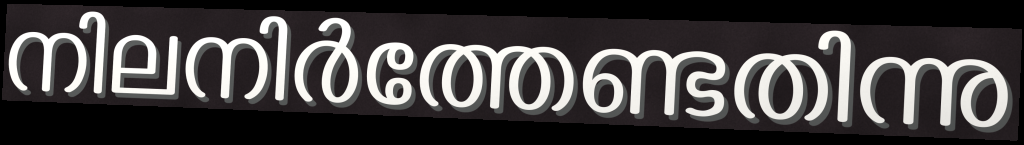
നിലനിർത്തേണ്ടതിന്നു